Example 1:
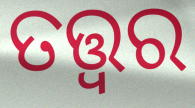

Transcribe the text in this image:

ତତ୍ତ୍ବର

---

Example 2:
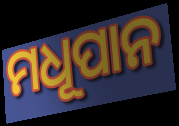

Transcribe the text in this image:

ମଧୂପାନ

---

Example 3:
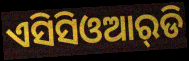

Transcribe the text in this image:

ଏସିସିଓଆର୍‌ଡି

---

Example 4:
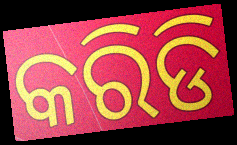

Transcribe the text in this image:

କରିଡି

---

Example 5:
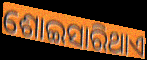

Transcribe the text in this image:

ଶୋଇସାରିଥାଏ